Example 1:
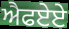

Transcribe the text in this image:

ਐਫਏਏ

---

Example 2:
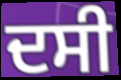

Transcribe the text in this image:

ਦਸੀ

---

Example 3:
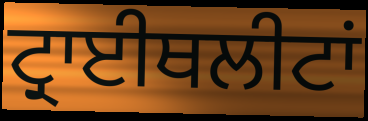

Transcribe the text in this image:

ਟ੍ਰਾਈਥਲੀਟਾਂ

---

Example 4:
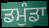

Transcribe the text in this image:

ਡਮੁੰਡਾ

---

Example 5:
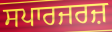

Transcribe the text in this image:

ਸਪਾਰਜਰਜ਼